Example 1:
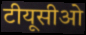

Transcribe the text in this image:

टीयूसीओ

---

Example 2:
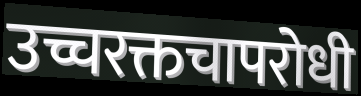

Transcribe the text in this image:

उच्चरक्तचापरोधी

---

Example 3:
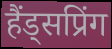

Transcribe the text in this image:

हैंड्सप्रिंग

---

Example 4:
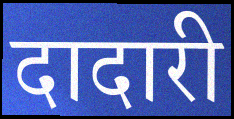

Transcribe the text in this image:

दादारी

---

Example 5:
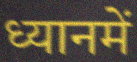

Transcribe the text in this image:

ध्यानमें